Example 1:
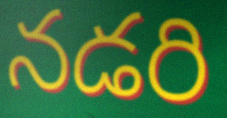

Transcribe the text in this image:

నడరి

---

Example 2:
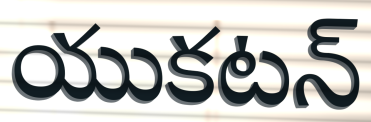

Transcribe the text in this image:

యుకటన్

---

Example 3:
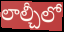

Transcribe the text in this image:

లాల్చీలో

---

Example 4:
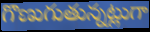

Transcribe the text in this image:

గొణుగుతున్నట్లుగా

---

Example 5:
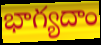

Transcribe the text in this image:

భాగ్యదాం